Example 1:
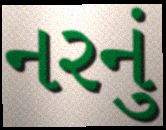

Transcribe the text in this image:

નરનું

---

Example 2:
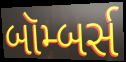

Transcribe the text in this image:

બૉમ્બર્સ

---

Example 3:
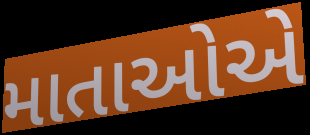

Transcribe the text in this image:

માતાઓએ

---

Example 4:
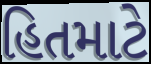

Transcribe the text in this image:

હિતમાટે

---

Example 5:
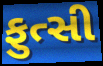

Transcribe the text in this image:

ફુત્સી